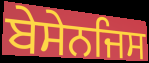
ਬੇਸੇਨਜਿਸ